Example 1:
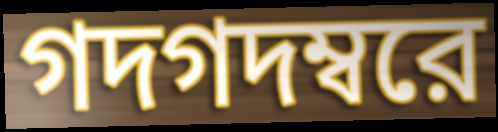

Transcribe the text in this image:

গদগদম্বরে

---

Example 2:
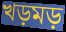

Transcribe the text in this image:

খড়মড়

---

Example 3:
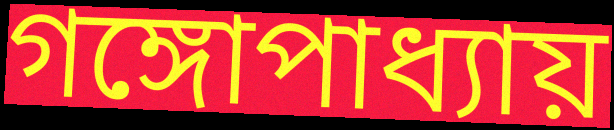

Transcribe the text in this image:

গঙ্গোপাধ্যায়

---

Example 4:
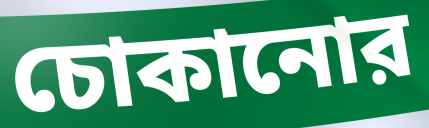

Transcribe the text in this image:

চোকানোর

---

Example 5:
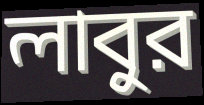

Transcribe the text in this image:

লাবুর